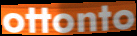
ottonto